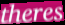
theres